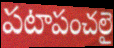
పటాపంచలై